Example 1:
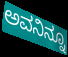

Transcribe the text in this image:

ಅವನಿನ್ನೂ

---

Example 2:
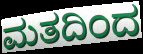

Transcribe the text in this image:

ಮತದಿಂದ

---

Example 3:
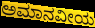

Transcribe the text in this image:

ಅಮಾನವೀಯ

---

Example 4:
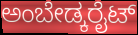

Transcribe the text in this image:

ಅಂಬೇಡ್ಕರೈಟ್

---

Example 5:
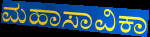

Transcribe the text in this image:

ಮಹಾಸಾವಿಕಾ